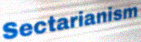
Sectarianism